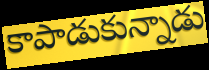
కాపాడుకున్నాడు